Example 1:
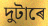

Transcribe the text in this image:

দুটাৰে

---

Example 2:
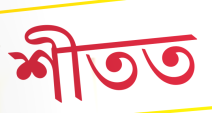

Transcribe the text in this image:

শীতত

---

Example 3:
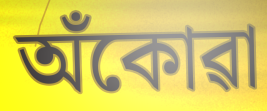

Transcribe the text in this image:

অঁকোৱা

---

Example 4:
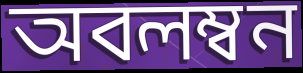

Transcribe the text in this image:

অবলম্বন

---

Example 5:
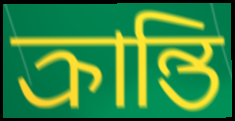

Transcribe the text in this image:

ক্ৰান্তি